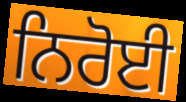
ਨਿਰੋਈ